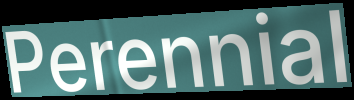
Perennial